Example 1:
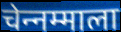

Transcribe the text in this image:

चेन्नम्माला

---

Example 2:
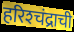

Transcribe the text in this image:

हरिश्‍चंद्राची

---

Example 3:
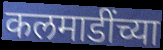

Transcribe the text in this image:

कलमाडींच्या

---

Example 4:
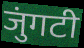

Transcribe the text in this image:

जुंगटी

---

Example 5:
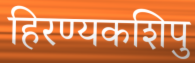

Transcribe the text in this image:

हिरण्यकशिपु